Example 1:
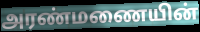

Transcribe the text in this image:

அரண்மணையின்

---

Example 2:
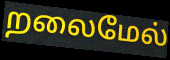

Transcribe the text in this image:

றலைமேல்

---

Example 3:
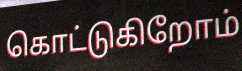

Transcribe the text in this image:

கொட்டுகிறோம்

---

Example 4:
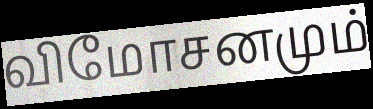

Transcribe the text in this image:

விமோசனமும்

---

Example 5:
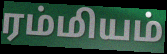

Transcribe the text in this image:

ரம்மியம்